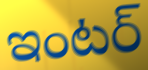
ఇంటర్